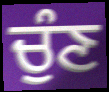
ਚੁੰਣ